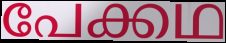
പേക്കഥ